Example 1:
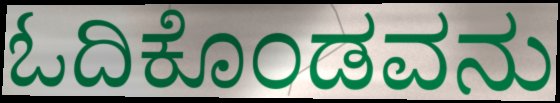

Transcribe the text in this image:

ಓದಿಕೊಂಡವನು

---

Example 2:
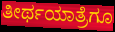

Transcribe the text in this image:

ತೀರ್ಥಯಾತ್ರೆಗೂ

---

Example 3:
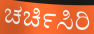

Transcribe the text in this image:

ಚರ್ಚಿಸಿರಿ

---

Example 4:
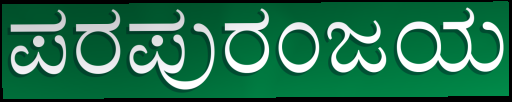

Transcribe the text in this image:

ಪರಪುರಂಜಯ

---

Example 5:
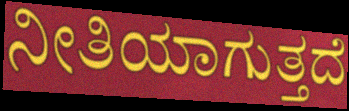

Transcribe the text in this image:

ನೀತಿಯಾಗುತ್ತದೆ